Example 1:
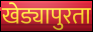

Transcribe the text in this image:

खेड्यापुरता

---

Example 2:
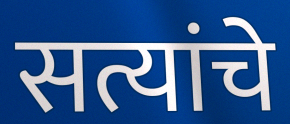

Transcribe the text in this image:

सत्यांचे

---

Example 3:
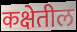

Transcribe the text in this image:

कक्षेतील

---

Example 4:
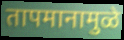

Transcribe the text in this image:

तापमानामुळे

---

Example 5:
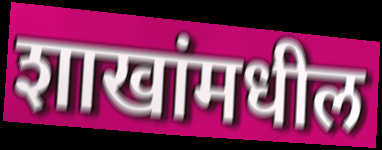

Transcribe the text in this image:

शाखांमधील